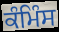
ਕੰਮਿੰਸ